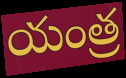
యంత్ర